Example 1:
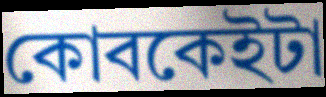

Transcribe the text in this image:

কোবকেইটা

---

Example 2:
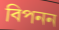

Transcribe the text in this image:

বিপনন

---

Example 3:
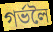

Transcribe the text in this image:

গৰ্ভলৈ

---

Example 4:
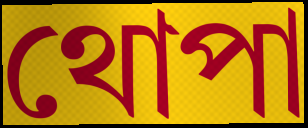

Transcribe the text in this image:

থোপা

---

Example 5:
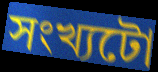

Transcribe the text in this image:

সংখ্যটো